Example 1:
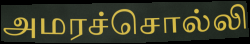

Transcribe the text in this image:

அமரச்சொல்லி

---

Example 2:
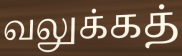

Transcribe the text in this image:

வலுக்கத்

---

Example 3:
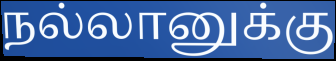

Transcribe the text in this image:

நல்லானுக்கு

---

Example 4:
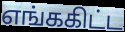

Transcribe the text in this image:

எங்ககிட்ட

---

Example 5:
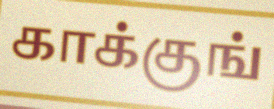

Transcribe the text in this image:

காக்குங்